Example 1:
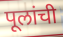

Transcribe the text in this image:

पूलांची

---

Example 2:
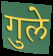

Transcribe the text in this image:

गुले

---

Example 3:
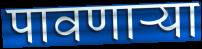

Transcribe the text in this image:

पावणाऱ्या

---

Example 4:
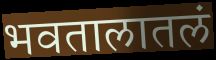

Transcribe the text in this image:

भवतालातलं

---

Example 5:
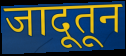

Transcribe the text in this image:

जादूतून